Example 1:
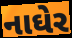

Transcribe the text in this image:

નાઘેર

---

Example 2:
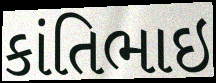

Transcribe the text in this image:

કાંતિભાઇ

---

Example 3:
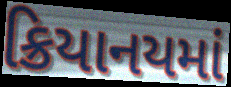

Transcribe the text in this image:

ક્રિયાનયમાં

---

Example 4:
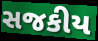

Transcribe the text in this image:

સજકીય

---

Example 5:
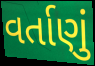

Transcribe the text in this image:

વર્તાણું